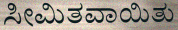
ಸೀಮಿತವಾಯಿತು